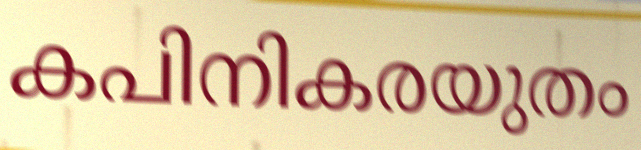
കപിനികരയുതം